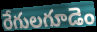
రేగులగూడెం